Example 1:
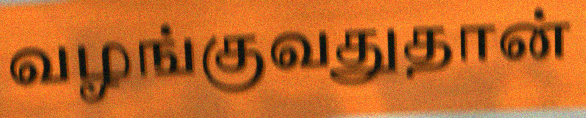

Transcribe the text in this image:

வழங்குவதுதான்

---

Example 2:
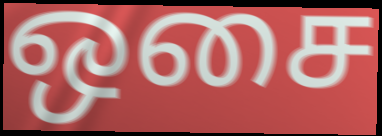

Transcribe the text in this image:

ஒசை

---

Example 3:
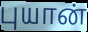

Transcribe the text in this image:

புயான்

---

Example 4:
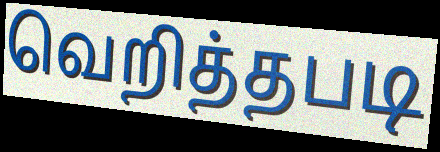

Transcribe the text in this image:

வெறித்தபடி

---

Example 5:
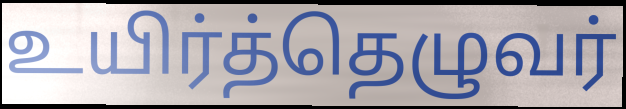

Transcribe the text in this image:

உயிர்த்தெழுவர்